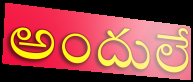
అందులే